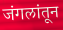
जंगलांतून